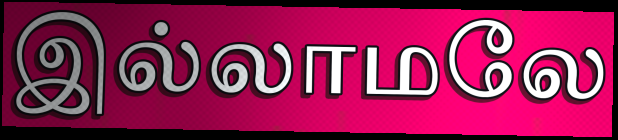
இல்லாமலே